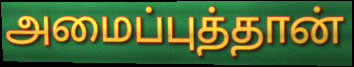
அமைப்புத்தான்